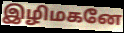
இழிமகனே